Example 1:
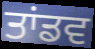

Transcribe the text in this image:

ਤਾਂਡਵ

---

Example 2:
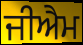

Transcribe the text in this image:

ਜੀਐਮ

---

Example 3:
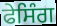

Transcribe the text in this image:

ਫੇਸਿੰਗ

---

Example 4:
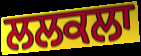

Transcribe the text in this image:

ਲਲਕਲਾ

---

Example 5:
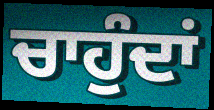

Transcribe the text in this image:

ਚਾਹੁੰਦਾਂ